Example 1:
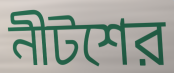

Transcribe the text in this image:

নীটশের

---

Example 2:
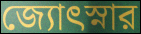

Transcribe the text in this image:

জ্যোৎস্নার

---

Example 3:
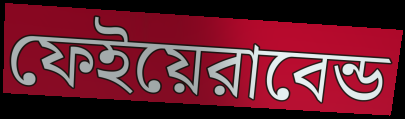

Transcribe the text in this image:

ফেইয়েরাবেন্ড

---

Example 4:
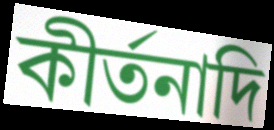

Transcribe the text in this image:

কীর্তনাদি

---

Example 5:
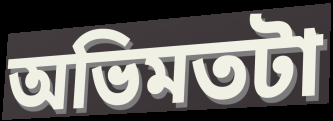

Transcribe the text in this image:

অভিমতটা